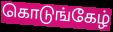
கொடுங்கேழ்